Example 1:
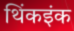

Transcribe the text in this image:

थिंकइंक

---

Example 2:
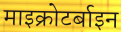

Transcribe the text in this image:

माइक्रोटर्बाइन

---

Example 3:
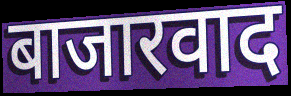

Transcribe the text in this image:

बाजारवाद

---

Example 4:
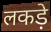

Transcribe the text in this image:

लकड़े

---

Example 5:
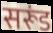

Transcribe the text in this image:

सरूंड